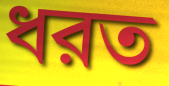
ধরত